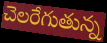
చెలరేగుతున్న